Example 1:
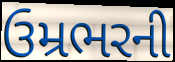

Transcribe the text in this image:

ઉમ્રભરની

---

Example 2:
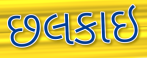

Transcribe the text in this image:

છલકાઇ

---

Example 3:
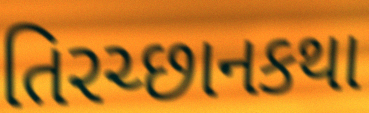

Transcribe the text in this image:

તિરચ્છાનકથા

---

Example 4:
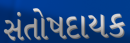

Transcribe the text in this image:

સંતોષદાયક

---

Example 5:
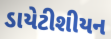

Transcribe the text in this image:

ડાયેટીશીયન